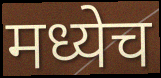
मध्येच